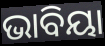
ଭାବିୟା